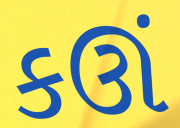
કઊં